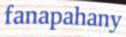
fanapahany